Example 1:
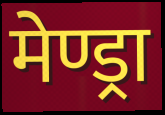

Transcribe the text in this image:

मेण्ड्रा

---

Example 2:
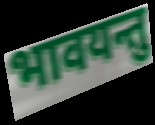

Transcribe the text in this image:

भावयन्तु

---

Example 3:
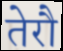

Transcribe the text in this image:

तेरौ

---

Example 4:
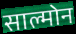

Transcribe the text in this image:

साल्मोन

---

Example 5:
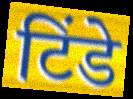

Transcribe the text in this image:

टिंडे